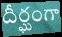
దీర్ఘంగా